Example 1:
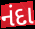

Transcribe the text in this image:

નંદા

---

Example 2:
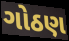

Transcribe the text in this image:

ગોઠણ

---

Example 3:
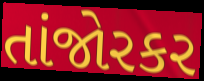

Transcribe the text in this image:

તાંજોરકર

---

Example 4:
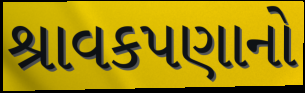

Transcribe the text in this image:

શ્રાવકપણાનો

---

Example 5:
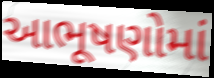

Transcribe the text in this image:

આભૂષણોમાં